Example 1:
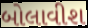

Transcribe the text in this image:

બોલાવીશ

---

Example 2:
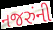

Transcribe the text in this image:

નજરુંની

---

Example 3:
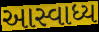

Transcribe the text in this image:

આસ્વાધ્ય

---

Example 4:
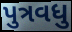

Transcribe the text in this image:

પુત્રવધુ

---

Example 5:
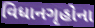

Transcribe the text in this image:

વિધાનગૃહોના